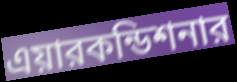
এয়ারকন্ডিশনার